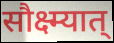
सौक्ष्म्यात्